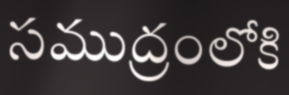
సముద్రంలోకి